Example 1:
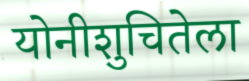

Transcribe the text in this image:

योनीशुचितेला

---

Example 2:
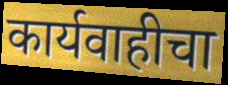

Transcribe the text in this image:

कार्यवाहीचा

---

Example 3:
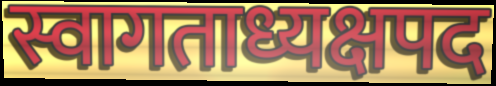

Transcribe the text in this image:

स्वागताध्यक्षपद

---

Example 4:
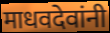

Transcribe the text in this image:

माधवदेवांनी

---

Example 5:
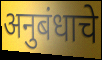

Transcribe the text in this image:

अनुबंधाचे